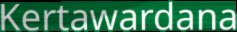
Kertawardana